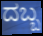
ದಬ್ಬ